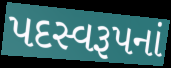
પદસ્વરૂપનાં